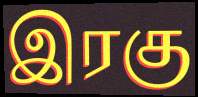
இரகு